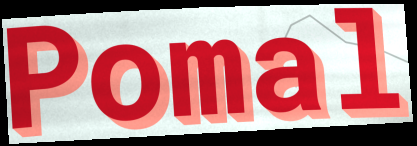
Pomal